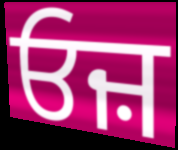
ਓਜ਼